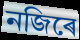
নজিৰে